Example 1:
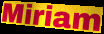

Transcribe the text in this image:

Miriam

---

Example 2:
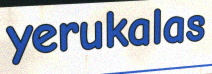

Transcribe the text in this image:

yerukalas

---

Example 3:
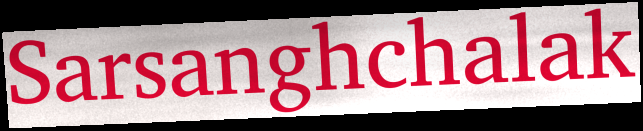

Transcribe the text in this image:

Sarsanghchalak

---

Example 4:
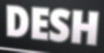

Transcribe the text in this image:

DESH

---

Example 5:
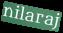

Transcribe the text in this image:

nilaraj